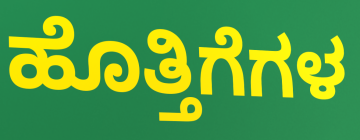
ಹೊತ್ತಿಗೆಗಳ